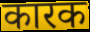
कारक